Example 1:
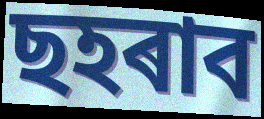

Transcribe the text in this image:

ছহৰাব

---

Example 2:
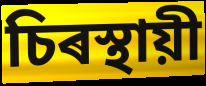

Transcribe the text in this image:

চিৰস্থায়ী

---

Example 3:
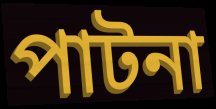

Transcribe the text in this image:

পাটনা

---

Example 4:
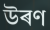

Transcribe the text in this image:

উৰণ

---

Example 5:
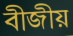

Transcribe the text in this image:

বীজীয়